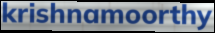
krishnamoorthy